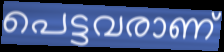
പെട്ടവരാണ്